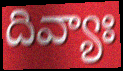
దివ్యాః